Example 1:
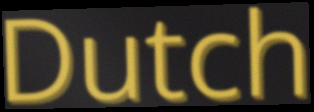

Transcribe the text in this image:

Dutch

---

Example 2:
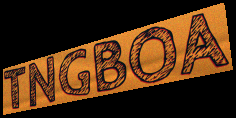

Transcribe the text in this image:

TNGBOA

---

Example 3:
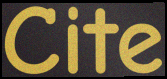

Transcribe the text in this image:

Cite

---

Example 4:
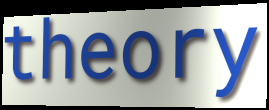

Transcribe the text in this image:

theory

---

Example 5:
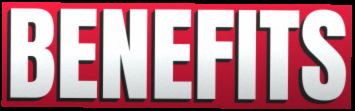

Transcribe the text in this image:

BENEFITS